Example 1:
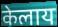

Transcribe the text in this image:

केलाय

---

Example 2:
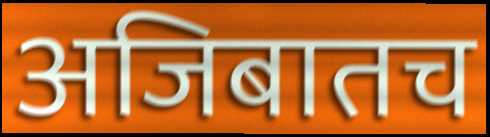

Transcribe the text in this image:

अजिबातच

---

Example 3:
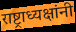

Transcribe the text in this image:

राष्ट्राध्यक्षांनी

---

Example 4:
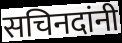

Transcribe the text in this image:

सचिनदांनी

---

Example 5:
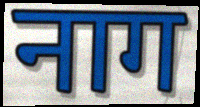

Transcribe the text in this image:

नाग